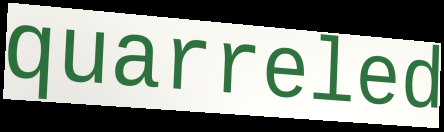
quarreled